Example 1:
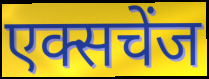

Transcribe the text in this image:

एक्सचेंज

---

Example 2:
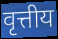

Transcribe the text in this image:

वृत्तीय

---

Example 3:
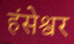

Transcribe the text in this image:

हंसेश्वर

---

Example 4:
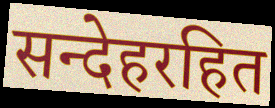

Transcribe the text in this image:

सन्देहरहित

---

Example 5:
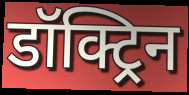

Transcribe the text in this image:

डॉक्ट्रिन